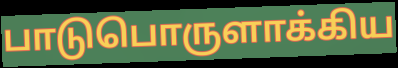
பாடுபொருளாக்கிய